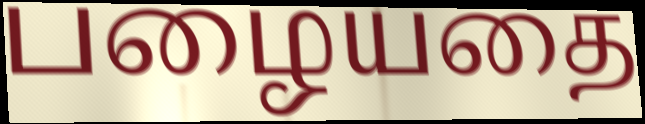
பழையதை